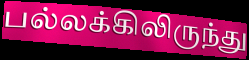
பல்லக்கிலிருந்து